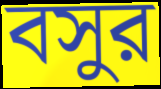
বসুর